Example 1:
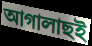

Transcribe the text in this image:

আগালাছই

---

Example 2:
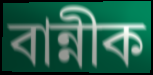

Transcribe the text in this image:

বান্নীক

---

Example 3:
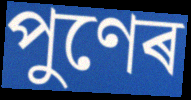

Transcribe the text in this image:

পুণেৰ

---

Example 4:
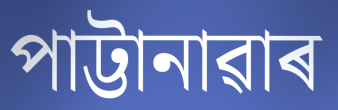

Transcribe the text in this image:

পাট্টানাৱাৰ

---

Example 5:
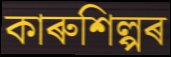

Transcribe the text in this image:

কাৰুশিল্পৰ